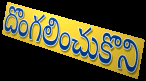
దొంగలించుకొని